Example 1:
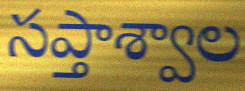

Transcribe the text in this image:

సప్తాశ్వాల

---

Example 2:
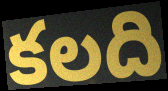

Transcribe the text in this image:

కలది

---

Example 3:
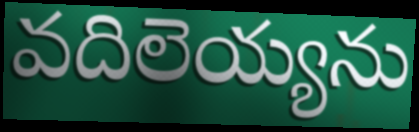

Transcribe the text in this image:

వదిలెయ్యను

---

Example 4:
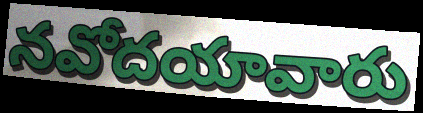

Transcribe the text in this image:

నవోదయావారు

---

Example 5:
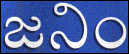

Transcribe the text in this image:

జనిం